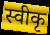
स्वीकृ